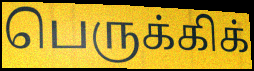
பெருக்கிக்